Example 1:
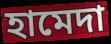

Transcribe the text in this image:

হামেদা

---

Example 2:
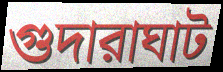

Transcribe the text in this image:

গুদারাঘাট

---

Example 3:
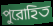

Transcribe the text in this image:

পুরোহিত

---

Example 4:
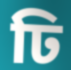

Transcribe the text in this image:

ঢি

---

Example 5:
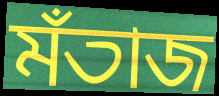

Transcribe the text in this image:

মঁতাজ